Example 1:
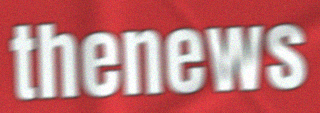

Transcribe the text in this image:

thenews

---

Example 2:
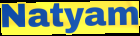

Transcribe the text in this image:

Natyam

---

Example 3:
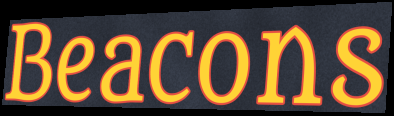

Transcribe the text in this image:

Beacons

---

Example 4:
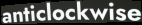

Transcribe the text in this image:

anticlockwise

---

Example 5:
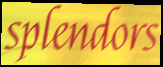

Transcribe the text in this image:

splendors